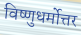
विष्णुधर्मोत्तर